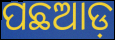
ପଛଆଡ଼